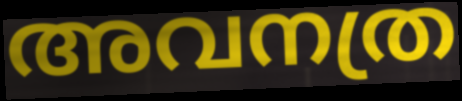
അവനത്ര